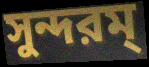
সুন্দরম্